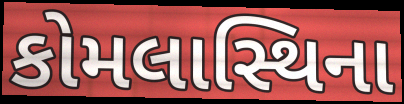
કોમલાસ્થિના